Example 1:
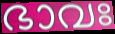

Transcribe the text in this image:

ഭാവഃ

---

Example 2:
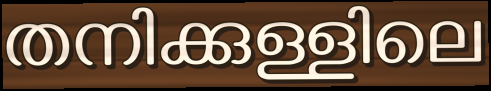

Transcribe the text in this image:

തനിക്കുള്ളിലെ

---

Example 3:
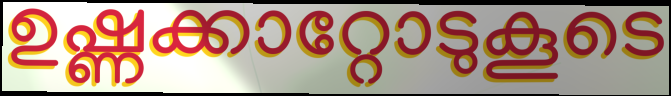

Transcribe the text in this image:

ഉഷ്ണക്കാറ്റോടുകൂടെ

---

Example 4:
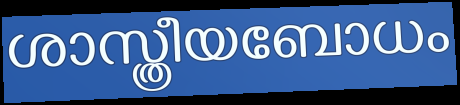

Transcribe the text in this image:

ശാസ്ത്രീയബോധം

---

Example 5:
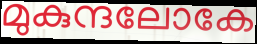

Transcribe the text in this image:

മുകുന്ദലോകേ